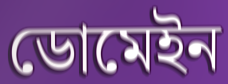
ডোমেইন